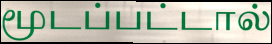
மூடப்பட்டால்